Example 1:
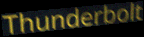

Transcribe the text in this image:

Thunderbolt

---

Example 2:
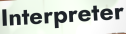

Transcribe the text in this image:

Interpreter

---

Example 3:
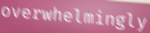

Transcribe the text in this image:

overwhelmingly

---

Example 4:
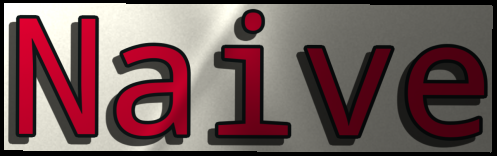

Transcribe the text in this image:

Naive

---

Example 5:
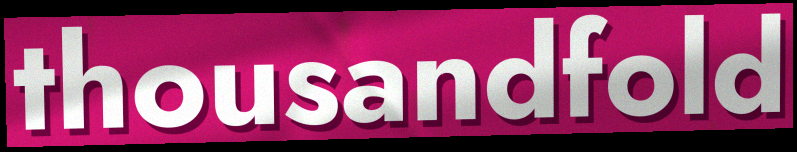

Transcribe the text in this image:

thousandfold